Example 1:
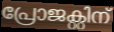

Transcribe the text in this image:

പ്രോജക്റ്റിന്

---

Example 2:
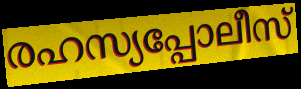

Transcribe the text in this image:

രഹസ്യപ്പോലീസ്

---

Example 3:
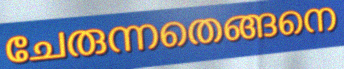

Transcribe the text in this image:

ചേരുന്നതെങ്ങനെ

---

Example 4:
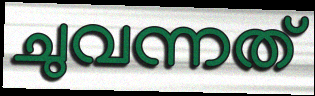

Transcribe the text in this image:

ചുവന്നത്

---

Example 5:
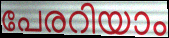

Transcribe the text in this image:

പേരറിയാം